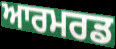
ਆਰਮਰਡ